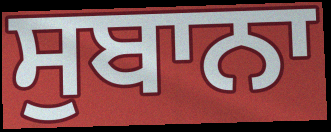
ਸੁਬਾਨਾ